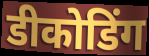
डीकोडिंग